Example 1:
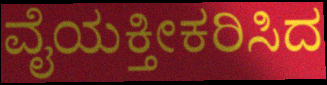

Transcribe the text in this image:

ವೈಯಕ್ತೀಕರಿಸಿದ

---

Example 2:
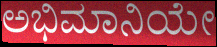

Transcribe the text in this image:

ಅಭಿಮಾನಿಯೇ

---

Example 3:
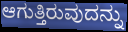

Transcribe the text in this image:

ಆಗುತ್ತಿರುವುದನ್ನು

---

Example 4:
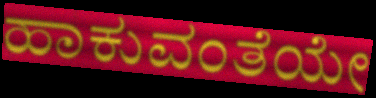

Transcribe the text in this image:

ಹಾಕುವಂತೆಯೇ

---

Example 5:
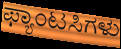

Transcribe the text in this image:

ಫ್ಯಾಂಟಸಿಗಳು